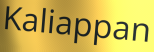
Kaliappan